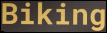
Biking